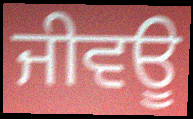
ਜੀਵਊ